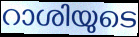
റാശിയുടെ